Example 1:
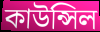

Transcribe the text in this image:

কাউন্সিল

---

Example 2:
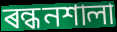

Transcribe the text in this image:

ৰন্ধনশালা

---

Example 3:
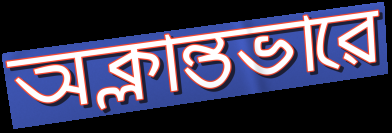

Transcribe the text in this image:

অক্লান্তভাৱে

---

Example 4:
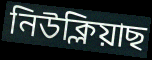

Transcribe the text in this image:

নিউক্লিয়াছ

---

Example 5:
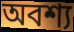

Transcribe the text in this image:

অবশ্য